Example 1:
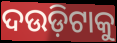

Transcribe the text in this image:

ଦଉଡ଼ିଟାକୁ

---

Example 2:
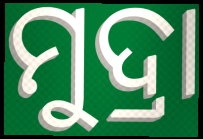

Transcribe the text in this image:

ମୁଦ୍ରା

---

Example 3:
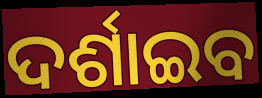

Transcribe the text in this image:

ଦର୍ଶାଇବ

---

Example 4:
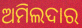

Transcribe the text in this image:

ଅମିଲଦାର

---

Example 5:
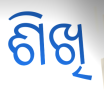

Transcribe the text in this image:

ଶିଖି